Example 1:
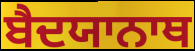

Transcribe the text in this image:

ਬੈਦਯਾਨਾਥ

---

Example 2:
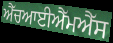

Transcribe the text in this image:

ਐੱਚਆਈਐੱਮਐੱਸ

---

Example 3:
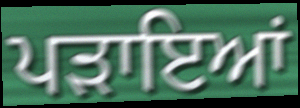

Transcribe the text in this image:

ਪੜਾਇਆਂ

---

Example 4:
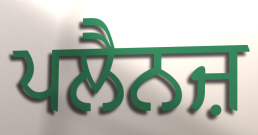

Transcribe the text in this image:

ਪਲੈਨਜ਼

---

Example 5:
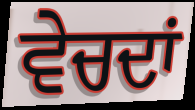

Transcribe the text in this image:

ਵੇਚਦਾਂ